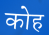
कोह